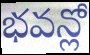
భవన్లో